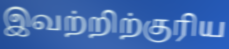
இவற்றிற்குரிய